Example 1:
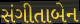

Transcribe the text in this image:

સંગીતાબેન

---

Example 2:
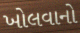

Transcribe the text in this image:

ખોલવાનો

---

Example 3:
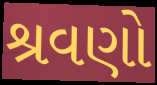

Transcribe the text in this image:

શ્રવણો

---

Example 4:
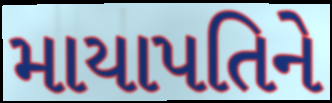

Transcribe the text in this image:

માયાપતિને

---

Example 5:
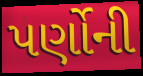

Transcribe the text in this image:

પર્ણોની